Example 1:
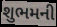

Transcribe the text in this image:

શુભમની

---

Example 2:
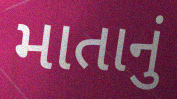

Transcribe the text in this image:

માતાનું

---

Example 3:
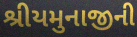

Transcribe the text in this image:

શ્રીયમુનાજીની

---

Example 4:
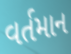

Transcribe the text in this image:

વર્તમાન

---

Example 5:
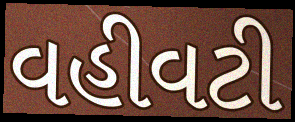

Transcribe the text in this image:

વહીવટી